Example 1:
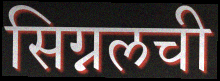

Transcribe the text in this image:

सिग्नलची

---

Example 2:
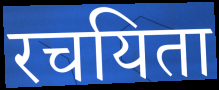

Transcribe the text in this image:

रचयिता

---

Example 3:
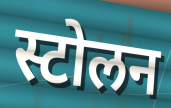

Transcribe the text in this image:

स्टोलन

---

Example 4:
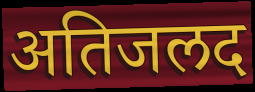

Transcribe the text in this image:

अतिजलद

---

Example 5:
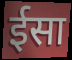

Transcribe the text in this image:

ईसा